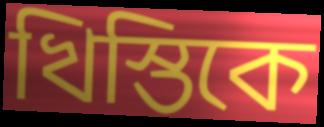
খিস্তিকে